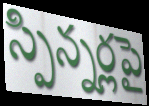
స్పిన్నర్లపై